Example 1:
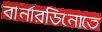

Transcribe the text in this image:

বার্নারডিনোতে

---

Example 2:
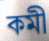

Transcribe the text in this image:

কমী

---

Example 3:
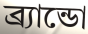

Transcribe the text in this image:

ব্র্যান্ডো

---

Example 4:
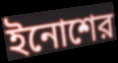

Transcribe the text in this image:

ইনোশের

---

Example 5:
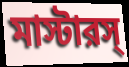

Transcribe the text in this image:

মাস্টারস্